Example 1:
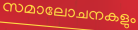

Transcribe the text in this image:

സമാലോചനകളും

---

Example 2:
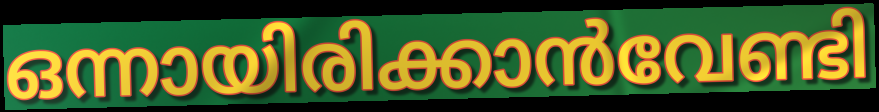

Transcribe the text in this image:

ഒന്നായിരിക്കാൻവേണ്ടി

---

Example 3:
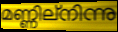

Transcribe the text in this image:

മണ്ണില്നിന്നു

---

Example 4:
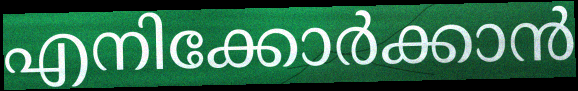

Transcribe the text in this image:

എനിക്കോർക്കാൻ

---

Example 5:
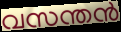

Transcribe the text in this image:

വസന്തൻ